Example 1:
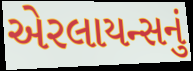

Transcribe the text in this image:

એરલાયન્સનું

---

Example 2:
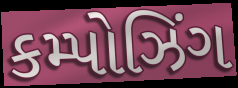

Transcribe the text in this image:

કમ્પોઝિંગ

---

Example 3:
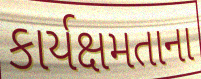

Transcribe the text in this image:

કાર્યક્ષમતાના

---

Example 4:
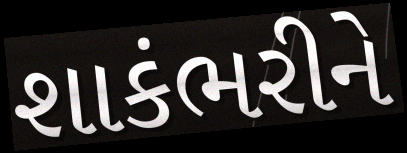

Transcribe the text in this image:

શાકંભરીને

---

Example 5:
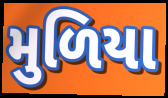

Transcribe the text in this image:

મુળિયા